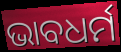
ଭାବଧର୍ମ